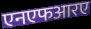
एनएफआरए